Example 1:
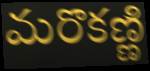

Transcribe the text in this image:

మరొకణ్ణి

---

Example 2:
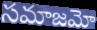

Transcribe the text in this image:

సమాజమో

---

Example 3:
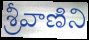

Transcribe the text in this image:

శ్రీవాణిని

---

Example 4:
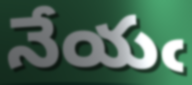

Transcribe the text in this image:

నేయఁ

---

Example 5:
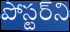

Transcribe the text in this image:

పోస్టర్‌ని